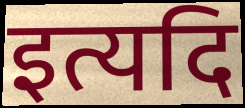
इत्यदि